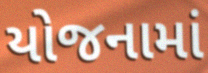
યોજનામાં